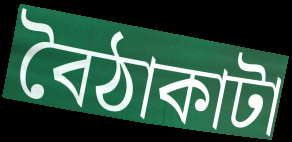
বৈঠাকাটা